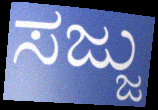
ಸಜ್ಜು